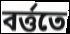
বর্ত্ততে